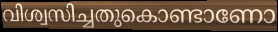
വിശ്വസിച്ചതുകൊണ്ടാണോ